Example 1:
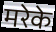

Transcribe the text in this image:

मरेके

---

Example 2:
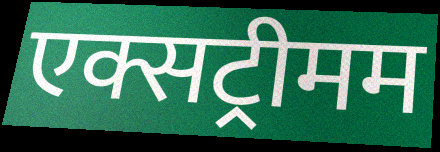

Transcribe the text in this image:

एक्सट्रीमम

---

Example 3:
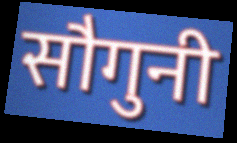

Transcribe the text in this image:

सौगुनी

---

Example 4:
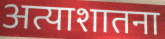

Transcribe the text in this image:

अत्याशातना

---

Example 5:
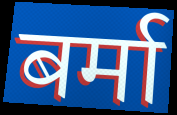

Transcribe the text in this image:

बर्मा